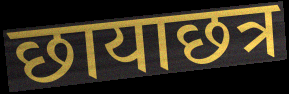
छायाछत्र